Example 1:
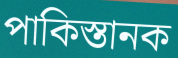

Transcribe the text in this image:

পাকিস্তানক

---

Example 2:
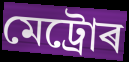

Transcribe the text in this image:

মেট্ৰোৰ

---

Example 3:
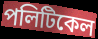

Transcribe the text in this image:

পলিটিকেল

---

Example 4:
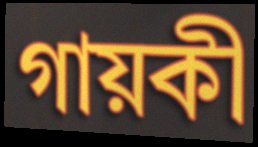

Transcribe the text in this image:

গায়কী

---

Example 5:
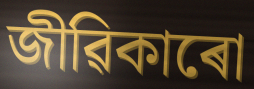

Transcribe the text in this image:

জীৱিকাৰো